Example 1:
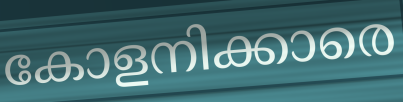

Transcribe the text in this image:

കോളനിക്കാരെ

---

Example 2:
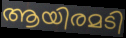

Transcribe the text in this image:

ആയിരമടി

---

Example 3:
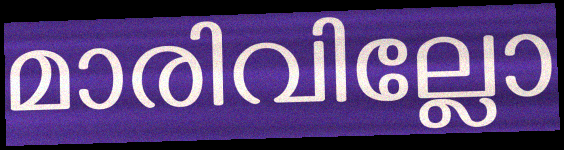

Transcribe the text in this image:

മാരിവില്ലോ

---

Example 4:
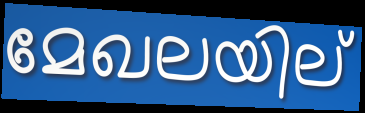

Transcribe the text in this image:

മേഖലയില്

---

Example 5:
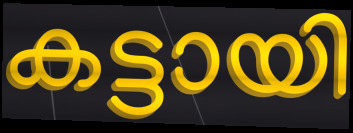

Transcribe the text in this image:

കട്ടായി